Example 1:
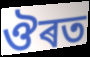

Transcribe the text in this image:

ঔৰত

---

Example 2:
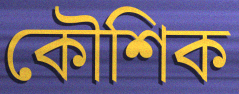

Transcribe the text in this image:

কৌশিক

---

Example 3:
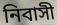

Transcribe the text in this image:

নিবাসী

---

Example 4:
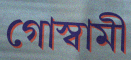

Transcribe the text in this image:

গোস্বামী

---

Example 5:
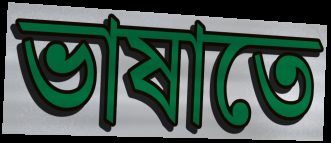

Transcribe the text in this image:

ভাষাতে